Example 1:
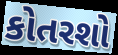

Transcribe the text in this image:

કોતરશો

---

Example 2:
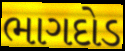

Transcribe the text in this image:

ભાગદોડ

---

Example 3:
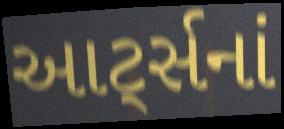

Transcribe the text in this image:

આર્ટ્સનાં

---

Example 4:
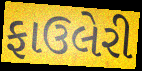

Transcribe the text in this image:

ફાઉલેરી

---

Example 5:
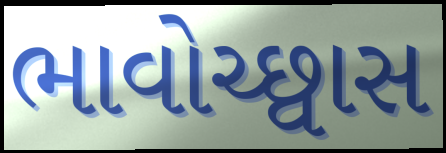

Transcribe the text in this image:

ભાવોચ્છ્વાસ